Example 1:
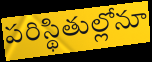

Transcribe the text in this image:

పరిస్థితుల్లోనూ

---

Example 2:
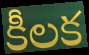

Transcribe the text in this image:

కీలక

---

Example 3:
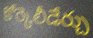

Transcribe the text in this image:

కోర్కెలీడేర్చు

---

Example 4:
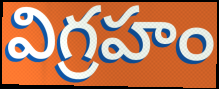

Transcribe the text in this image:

విగ్రహం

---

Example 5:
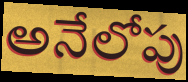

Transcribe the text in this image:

అనేలోపు